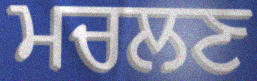
ਮਚਲਣ